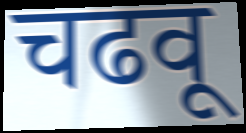
चढवू